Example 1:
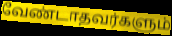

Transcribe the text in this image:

வேண்டாதவர்களும்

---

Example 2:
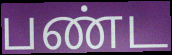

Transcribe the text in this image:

பண்ட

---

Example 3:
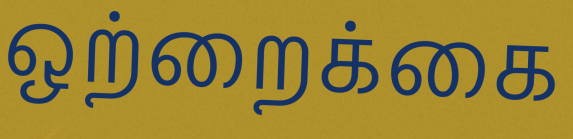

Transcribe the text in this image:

ஒற்றைக்கை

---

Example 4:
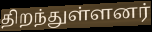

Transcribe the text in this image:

திறந்துள்ளனர்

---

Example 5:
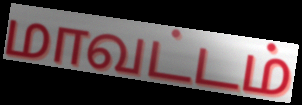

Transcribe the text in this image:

மாவட்டம்